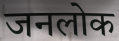
जनलोक